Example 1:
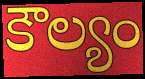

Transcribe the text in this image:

కౌల్యం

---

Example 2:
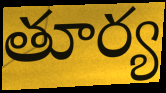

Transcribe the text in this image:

తూర్య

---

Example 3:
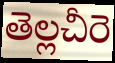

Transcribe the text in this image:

తెల్లచీరె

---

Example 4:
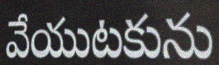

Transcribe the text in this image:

వేయుటకును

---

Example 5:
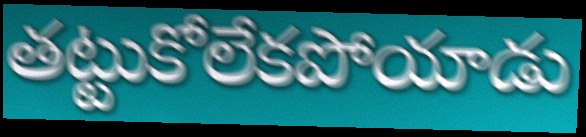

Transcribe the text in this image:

తట్టుకోలేకపోయాడు